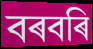
বৰবৰি